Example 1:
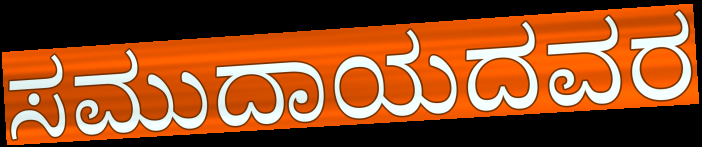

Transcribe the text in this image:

ಸಮುದಾಯದವರ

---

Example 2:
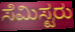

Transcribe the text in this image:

ಸೆಮಿಸ್ಟರು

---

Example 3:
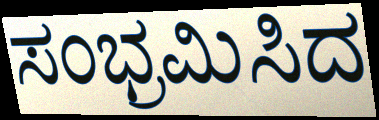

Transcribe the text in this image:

ಸಂಭ್ರಮಿಸಿದ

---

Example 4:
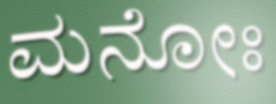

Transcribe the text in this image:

ಮನೋಃ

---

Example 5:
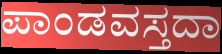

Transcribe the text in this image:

ಪಾಂಡವಸ್ತದಾ